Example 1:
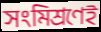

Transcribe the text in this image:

সংমিশ্রণেই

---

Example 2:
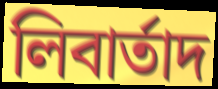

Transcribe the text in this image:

লিবার্তাদ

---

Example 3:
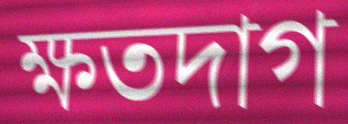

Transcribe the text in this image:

ক্ষতদাগ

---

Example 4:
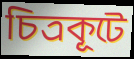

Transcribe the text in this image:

চিত্রকূটে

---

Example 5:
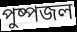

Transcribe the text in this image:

পুষ্পজল